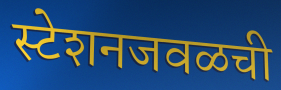
स्टेशनजवळची